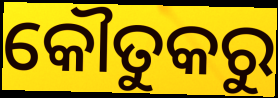
କୌତୁକରୁ